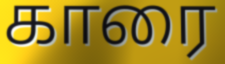
காரை